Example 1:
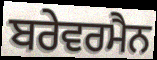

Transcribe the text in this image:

ਬਰੇਵਰਮੈਨ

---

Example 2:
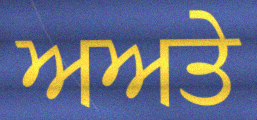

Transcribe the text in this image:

ਅਅਤੇ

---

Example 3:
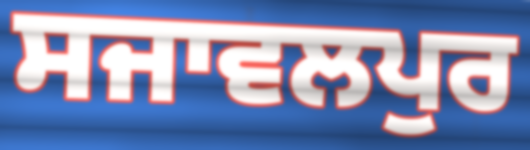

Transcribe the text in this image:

ਸਜਾਵਲਪੁਰ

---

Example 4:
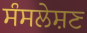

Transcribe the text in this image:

ਸੰਸਲੇਸ਼ਣ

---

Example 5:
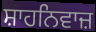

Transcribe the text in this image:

ਸ਼ਾਹਨਿਵਾਜ਼